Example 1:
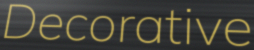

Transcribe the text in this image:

Decorative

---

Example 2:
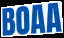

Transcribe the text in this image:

BOAA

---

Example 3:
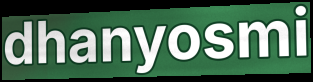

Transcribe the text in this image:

dhanyosmi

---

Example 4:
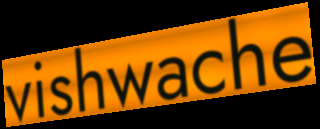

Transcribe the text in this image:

vishwache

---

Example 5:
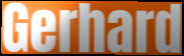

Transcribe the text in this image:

Gerhard